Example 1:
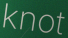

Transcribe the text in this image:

knot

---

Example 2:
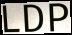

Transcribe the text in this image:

LDP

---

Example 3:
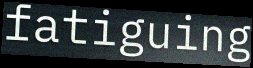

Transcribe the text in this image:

fatiguing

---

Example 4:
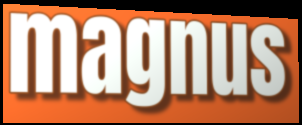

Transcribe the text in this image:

magnus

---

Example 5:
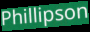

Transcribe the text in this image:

Phillipson